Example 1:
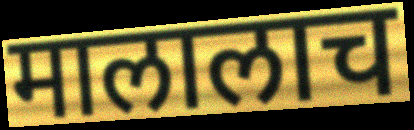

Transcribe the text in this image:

मालालाच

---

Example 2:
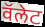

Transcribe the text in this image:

वॅलेट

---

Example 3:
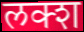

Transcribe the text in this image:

लक्श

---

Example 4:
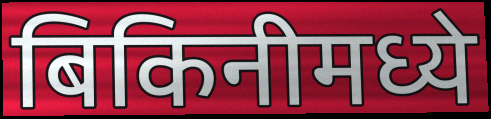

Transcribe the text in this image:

बिकिनीमध्ये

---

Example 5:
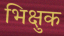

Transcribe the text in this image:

भिक्षुक